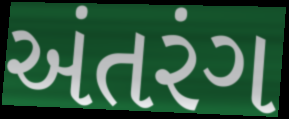
અંતરંગ